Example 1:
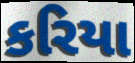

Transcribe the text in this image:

કરિયા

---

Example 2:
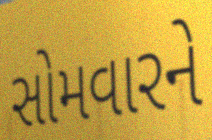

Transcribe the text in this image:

સોમવારને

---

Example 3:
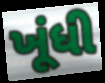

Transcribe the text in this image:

ખૂંધી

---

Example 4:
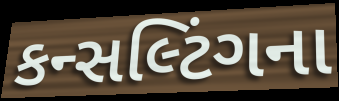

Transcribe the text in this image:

કન્સલ્ટિંગના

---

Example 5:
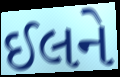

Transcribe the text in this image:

ઈલને